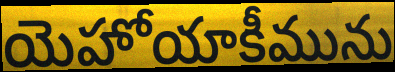
యెహోయాకీమును